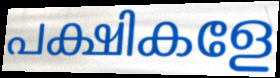
പക്ഷികളേ